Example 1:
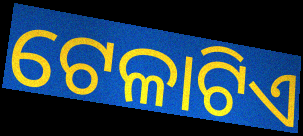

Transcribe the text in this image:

ଟେଳାଟିଏ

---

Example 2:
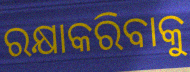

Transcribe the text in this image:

ରକ୍ଷାକରିବାକୁ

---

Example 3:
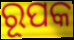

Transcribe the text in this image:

ରୂପକ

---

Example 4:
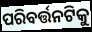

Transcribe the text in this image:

ପରିବର୍ତ୍ତନଟିକୁ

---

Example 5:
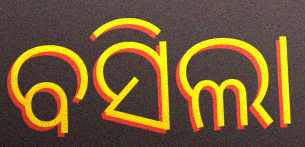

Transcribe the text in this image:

ବସିଲା